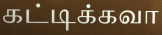
கட்டிக்கவா